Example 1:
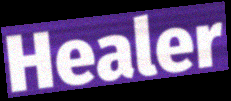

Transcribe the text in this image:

Healer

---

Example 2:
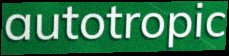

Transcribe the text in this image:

autotropic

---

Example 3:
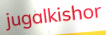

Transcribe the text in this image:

jugalkishor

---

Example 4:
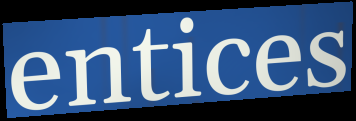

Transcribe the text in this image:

entices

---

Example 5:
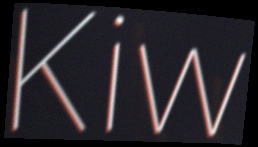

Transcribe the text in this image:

Kiw